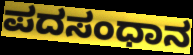
ಪದಸಂಧಾನ